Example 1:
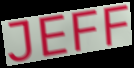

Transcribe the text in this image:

JEFF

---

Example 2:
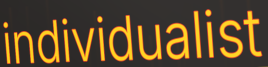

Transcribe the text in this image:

individualist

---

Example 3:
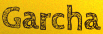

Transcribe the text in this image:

Garcha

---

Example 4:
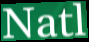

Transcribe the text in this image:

Natl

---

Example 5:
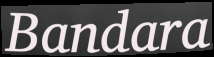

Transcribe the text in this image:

Bandara